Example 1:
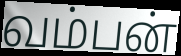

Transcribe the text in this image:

வம்பன்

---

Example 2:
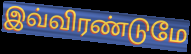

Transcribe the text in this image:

இவ்விரண்டுமே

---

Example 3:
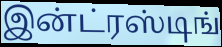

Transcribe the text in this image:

இன்ட்ரஸ்டிங்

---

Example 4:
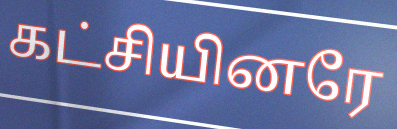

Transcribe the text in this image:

கட்சியினரே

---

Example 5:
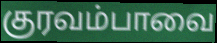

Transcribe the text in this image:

குரவம்பாவை